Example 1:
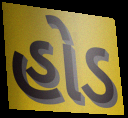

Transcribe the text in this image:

હોડ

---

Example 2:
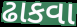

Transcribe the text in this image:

ઢાકવા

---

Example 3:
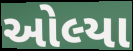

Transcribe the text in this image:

ઓલ્યા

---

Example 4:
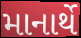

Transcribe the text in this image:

માનાર્થે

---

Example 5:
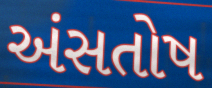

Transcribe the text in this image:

અંસતોષ